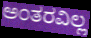
ಅಂತರವಿಲ್ಲ